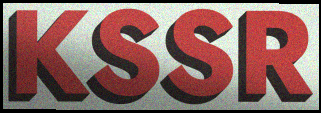
KSSR